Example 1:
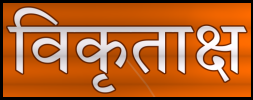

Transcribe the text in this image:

विकृताक्ष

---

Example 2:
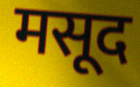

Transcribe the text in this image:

मसूद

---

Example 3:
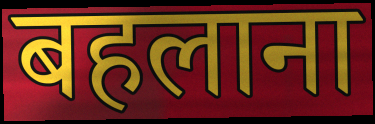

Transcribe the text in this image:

बहलाना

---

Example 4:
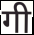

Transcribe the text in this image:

गी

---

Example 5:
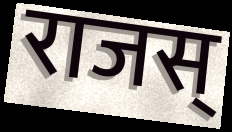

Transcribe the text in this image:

राजस्